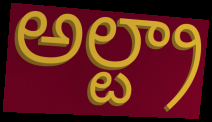
అల్ట్రా